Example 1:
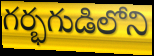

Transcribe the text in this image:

గర్భగుడిలోని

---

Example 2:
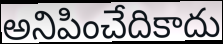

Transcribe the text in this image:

అనిపించేదికాదు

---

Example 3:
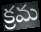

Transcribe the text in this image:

క్రమ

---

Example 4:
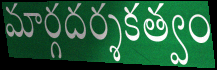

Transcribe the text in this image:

మార్గదర్శకత్వం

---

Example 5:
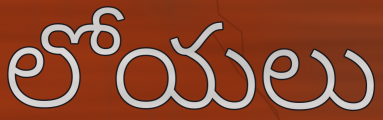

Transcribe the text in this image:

లోయలు